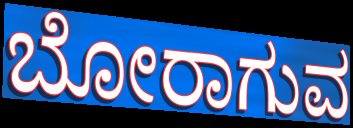
ಬೋರಾಗುವ